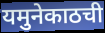
यमुनेकाठची